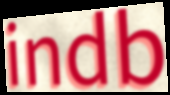
indb